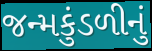
જન્મકુંડળીનું